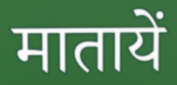
मातायें